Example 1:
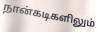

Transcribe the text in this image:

நான்கடிகளிலும்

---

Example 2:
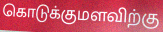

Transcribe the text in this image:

கொடுக்குமளவிற்கு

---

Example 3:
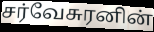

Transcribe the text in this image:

சர்வேசுரனின்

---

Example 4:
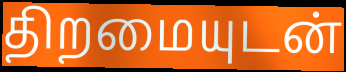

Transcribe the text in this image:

திறமையுடன்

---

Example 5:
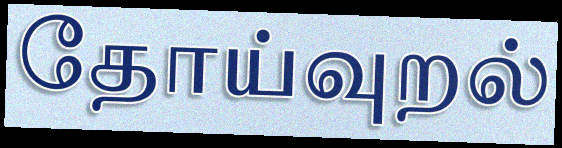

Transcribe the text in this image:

தோய்வுறல்